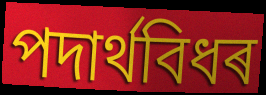
পদাৰ্থবিধৰ